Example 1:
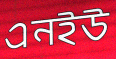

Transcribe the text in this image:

এনইউ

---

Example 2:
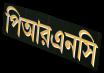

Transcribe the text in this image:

পিআরএনসি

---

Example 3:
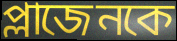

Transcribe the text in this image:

প্লাজেনকে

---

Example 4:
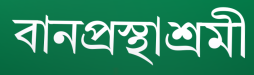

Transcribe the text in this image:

বানপ্রস্থাশ্রমী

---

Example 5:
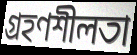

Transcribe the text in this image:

গ্রহণশীলতা